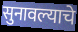
सुनावल्याचे